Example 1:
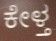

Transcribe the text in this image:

ಕೇಳ್ತ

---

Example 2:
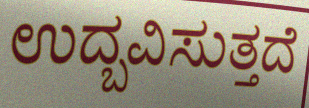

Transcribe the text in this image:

ಉದ್ಬವಿಸುತ್ತದೆ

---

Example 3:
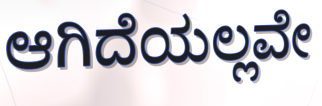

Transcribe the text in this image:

ಆಗಿದೆಯಲ್ಲವೇ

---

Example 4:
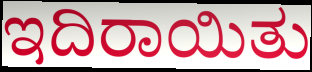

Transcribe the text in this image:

ಇದಿರಾಯಿತು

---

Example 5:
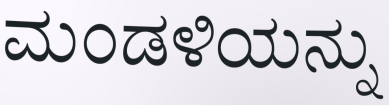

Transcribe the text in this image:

ಮಂಡಳಿಯನ್ನು